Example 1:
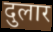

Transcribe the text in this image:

दुलार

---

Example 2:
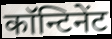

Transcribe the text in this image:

कॉन्टिनेंट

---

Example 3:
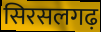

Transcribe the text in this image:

सिरसलगढ़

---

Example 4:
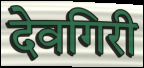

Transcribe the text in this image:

देवगिरी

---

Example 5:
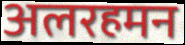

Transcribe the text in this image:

अलरहमन